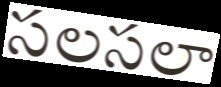
సలసలా